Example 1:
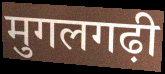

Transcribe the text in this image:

मुगलगढ़ी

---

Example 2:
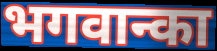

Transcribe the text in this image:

भगवान्का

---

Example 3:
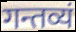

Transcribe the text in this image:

गन्तव्यं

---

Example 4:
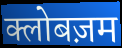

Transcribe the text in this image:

क्लोबज़म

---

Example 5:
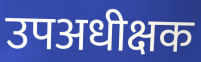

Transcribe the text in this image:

उपअधीक्षक